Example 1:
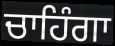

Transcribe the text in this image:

ਚਾਹਿੰਗਾ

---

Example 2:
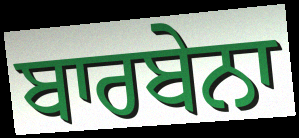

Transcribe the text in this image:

ਬਾਰਬੇਨਾ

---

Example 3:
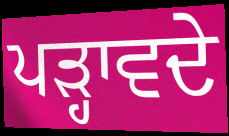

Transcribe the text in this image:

ਪੜ੍ਹਾਵਦੇ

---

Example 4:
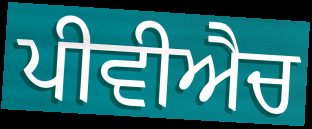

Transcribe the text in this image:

ਪੀਵੀਐਚ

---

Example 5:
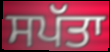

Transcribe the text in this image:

ਸਪੱਤਾ